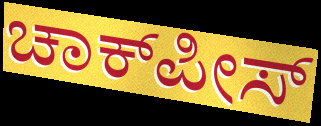
ಚಾಕ್‌ಪೀಸ್